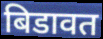
बिडावत